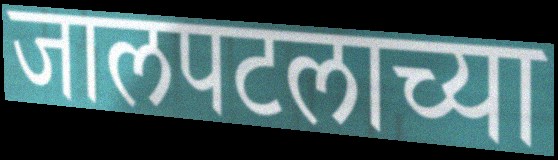
जालपटलाच्या